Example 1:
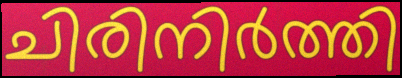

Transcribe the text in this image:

ചിരിനിർത്തി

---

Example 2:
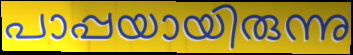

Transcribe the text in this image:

പാപ്പയായിരുന്നു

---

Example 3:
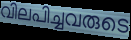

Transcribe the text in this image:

വിലപിച്ചവരുടെ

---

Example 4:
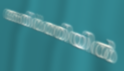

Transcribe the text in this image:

അതിർത്തിയിൽ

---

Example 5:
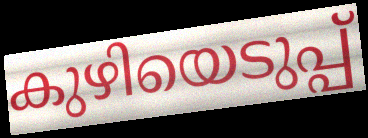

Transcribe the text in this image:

കുഴിയെടുപ്പ്